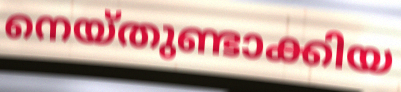
നെയ്തുണ്ടാക്കിയ